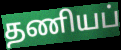
தணியப்